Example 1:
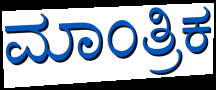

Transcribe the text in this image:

ಮಾಂತ್ರಿಕ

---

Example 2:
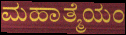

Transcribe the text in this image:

ಮಹಾತ್ಮೆಯಂ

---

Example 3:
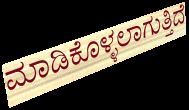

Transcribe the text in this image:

ಮಾಡಿಕೊಳ್ಳಲಾಗುತ್ತಿದೆ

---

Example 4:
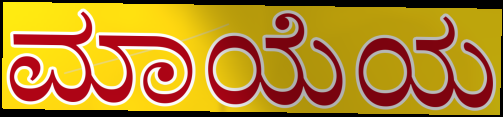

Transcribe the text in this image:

ಮಾಯೆಯ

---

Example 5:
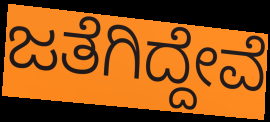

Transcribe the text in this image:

ಜತೆಗಿದ್ದೇವೆ